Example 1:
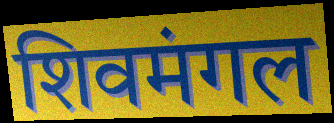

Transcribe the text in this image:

शिवमंगल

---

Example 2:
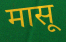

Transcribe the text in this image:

मासू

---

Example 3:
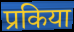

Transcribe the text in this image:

प्रकिया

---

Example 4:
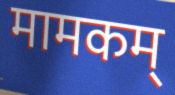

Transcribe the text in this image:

मामकम्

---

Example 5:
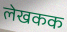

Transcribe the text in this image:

लेखकक